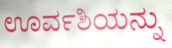
ಊರ್ವಶಿಯನ್ನು